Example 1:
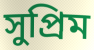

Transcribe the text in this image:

সুপ্রিম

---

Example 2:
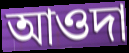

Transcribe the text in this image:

আওদা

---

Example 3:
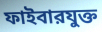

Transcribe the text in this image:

ফাইবারযুক্ত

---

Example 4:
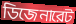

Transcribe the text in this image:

ডিজেনারেট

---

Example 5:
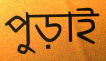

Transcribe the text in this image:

পুড়াই